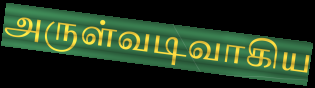
அருள்வடிவாகிய